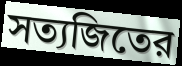
সত্যজিতের